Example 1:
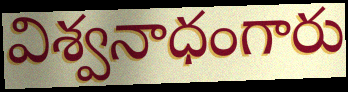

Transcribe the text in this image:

విశ్వనాధంగారు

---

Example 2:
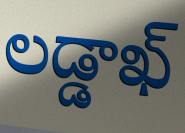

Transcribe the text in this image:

లడ్డాఖ్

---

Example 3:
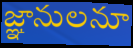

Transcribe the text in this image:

జ్ఞానులనూ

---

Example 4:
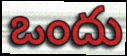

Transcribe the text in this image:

ఒందు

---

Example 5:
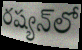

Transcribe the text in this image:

రష్యన్‌లో